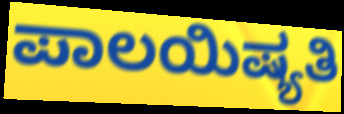
ಪಾಲಯಿಷ್ಯತಿ